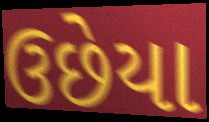
ઉછેયા